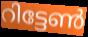
റിട്ടേൺ